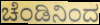
ಚೆಂಡಿನಿಂದ